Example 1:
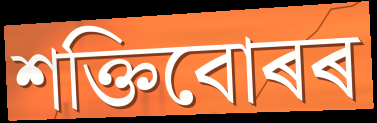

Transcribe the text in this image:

শক্তিবোৰৰ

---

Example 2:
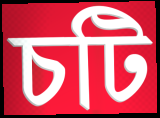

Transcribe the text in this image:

চটি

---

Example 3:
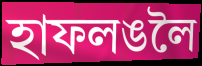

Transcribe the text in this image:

হাফলঙলৈ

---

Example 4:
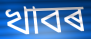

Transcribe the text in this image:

খাবৰ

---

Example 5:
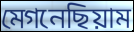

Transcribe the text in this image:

মেগনেছিয়াম